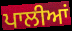
ਪਾਲੀਆਂ